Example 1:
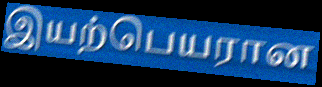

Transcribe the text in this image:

இயற்பெயரான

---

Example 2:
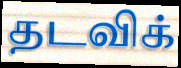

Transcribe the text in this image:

தடவிக்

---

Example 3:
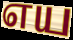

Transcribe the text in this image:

எய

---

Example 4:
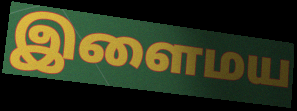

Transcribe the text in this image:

இளைமய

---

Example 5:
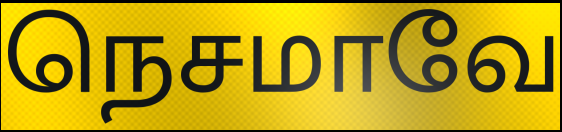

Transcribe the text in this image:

நெசமாவே